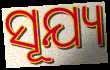
ସୂଯ୍ୟ